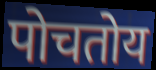
पोचतोय